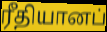
ரீதியானப்